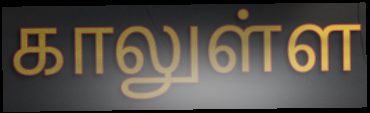
காலுள்ள